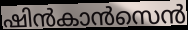
ഷിൻകാൻസെൻ